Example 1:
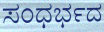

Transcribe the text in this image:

ಸಂಧರ್ಭದ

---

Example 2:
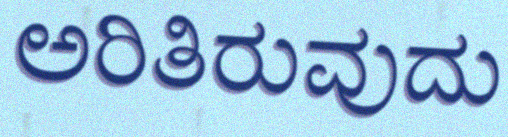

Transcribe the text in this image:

ಅರಿತಿರುವುದು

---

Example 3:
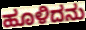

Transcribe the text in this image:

ಹೂಳಿದನು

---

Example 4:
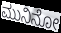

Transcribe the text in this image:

ಮುನಿನೋ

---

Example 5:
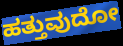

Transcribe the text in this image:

ಹತ್ತುವುದೋ